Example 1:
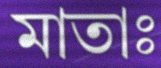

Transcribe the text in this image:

মাতাঃ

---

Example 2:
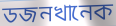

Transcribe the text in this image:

ডজনখানেক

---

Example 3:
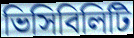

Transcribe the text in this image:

ভিসিবিলিটি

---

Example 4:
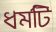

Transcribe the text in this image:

ধর্মটি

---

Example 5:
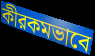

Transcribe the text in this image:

কীরকমভাবে